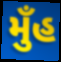
મુઁહ